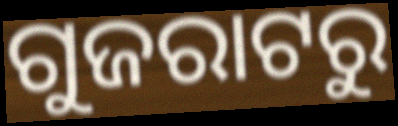
ଗୁଜରାଟରୁ